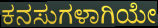
ಕನಸುಗಳಾಗಿಯೇ